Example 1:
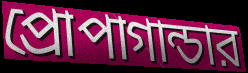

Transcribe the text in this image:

প্রোপাগান্ডার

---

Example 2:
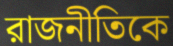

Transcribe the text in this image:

রাজনীতিকে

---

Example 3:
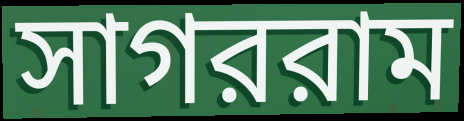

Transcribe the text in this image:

সাগররাম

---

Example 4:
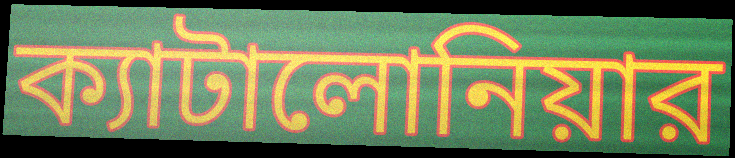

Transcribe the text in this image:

ক্যাটালোনিয়ার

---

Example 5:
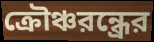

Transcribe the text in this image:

ক্রৌঞ্চরন্ধ্রের